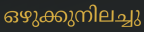
ഒഴുക്കുനിലച്ചു